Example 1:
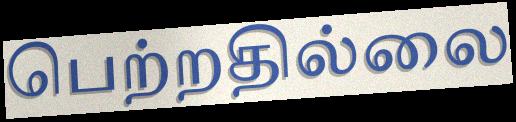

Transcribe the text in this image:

பெற்றதில்லை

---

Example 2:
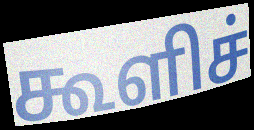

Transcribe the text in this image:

கூளிச்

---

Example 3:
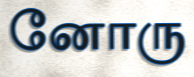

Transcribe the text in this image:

னோரு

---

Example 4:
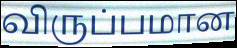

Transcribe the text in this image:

விருப்பமான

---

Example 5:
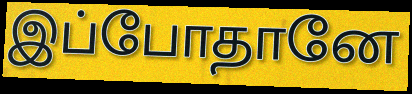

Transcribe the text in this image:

இப்போதானே